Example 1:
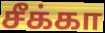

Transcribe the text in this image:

சீக்கா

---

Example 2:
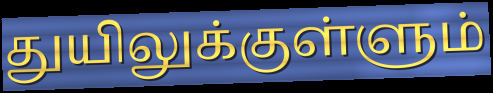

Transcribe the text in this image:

துயிலுக்குள்ளும்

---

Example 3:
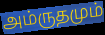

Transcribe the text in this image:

அம்ருதமும்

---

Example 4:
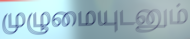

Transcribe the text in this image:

முழுமையுடனும்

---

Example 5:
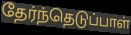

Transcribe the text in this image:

தேர்ந்தெடுப்பாள்